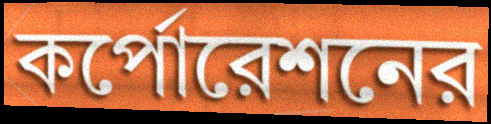
কর্পোরেশনের